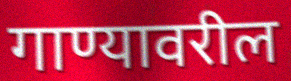
गाण्यावरील